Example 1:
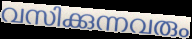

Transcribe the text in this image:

വസിക്കുന്നവരും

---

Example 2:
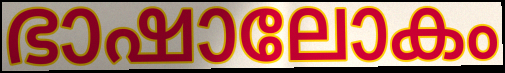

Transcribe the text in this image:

ഭാഷാലോകം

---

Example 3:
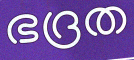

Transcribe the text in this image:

ഭദ്രത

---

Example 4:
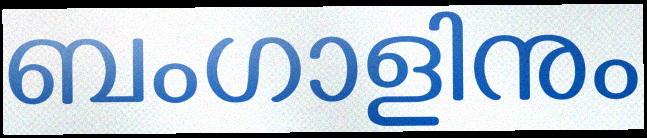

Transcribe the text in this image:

ബംഗാളിനും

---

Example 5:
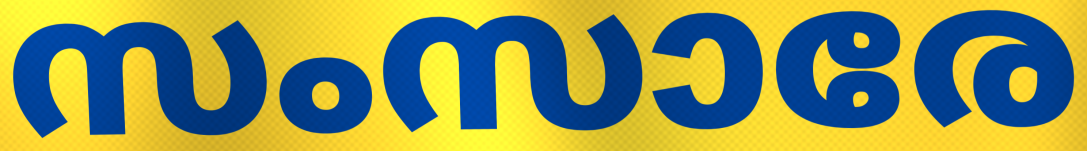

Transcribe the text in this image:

സംസാരേ